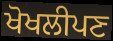
ਖੋਖਲੀਪਣ